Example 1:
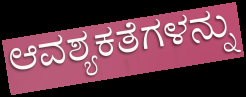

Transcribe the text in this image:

ಆವಶ್ಯಕತೆಗಳನ್ನು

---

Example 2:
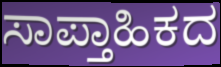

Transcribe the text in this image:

ಸಾಪ್ತಾಹಿಕದ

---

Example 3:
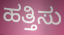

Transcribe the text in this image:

ಹತ್ತಿಸು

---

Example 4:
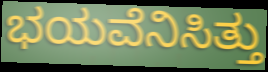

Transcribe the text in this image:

ಭಯವೆನಿಸಿತ್ತು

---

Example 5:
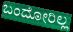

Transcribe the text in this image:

ಬಂದೋರಿಲ್ಲ